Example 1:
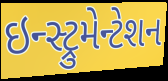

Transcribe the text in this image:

ઇન્સ્ટ્રુમેન્ટેશન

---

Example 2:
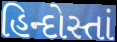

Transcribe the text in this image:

હિન્દોસ્તાં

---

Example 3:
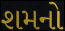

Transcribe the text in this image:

શમનો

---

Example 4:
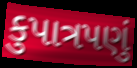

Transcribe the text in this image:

કુપાત્રપણું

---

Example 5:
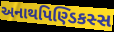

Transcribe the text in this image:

અનાથપિણ્ડિકસ્સ